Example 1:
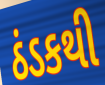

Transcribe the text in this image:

ઠંડકથી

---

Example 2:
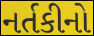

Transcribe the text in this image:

નર્તકીનો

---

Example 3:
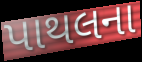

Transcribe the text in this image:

પાથલના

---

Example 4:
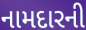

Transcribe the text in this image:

નામદારની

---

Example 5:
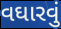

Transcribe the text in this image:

વઘારવું